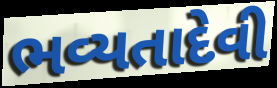
ભવ્યતાદેવી